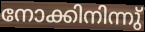
നോക്കിനിന്നു്